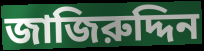
জাজিরুদ্দিন